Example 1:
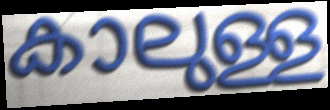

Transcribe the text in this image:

കാലുള്ള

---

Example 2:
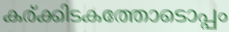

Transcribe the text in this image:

കര്ക്കിടകത്തോടൊപ്പം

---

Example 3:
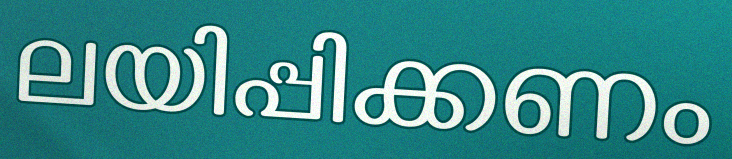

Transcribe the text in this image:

ലയിപ്പിക്കണം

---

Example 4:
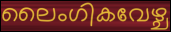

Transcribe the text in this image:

ലൈംഗികവേഴ്ച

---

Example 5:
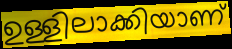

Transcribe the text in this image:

ഉള്ളിലാക്കിയാണ്